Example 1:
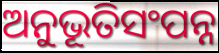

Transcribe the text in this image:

ଅନୁଭୂତିସଂପନ୍ନ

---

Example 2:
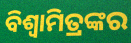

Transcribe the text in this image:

ବିଶ୍ବାମିତ୍ରଙ୍କର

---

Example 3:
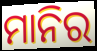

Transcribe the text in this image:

ମାନିର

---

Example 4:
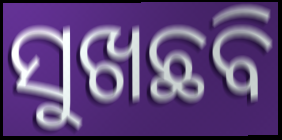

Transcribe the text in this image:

ସୁଖଛବି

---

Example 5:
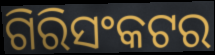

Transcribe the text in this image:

ଗିରିସଂକଟର